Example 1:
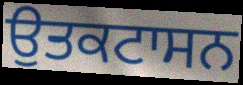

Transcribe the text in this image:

ਉਤਕਟਾਸਨ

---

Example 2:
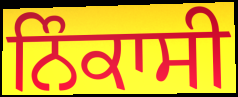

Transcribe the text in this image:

ਨਿੰਕਾਸੀ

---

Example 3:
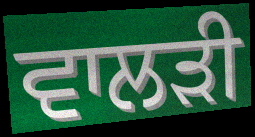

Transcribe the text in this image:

ਵਾਲੜੀ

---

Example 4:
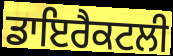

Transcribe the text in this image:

ਡਾਇਰੈਕਟਲੀ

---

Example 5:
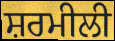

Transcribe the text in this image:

ਸ਼ਰਮੀਲੀ